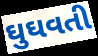
ઘુઘવતી